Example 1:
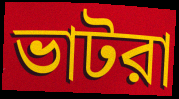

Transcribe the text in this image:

ভাটরা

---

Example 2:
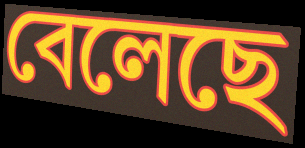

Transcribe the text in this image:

বেলেছে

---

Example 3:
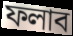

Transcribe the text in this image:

ফলাব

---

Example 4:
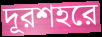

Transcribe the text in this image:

দূরশহরে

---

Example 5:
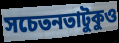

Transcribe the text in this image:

সচেতনতাটুকুও